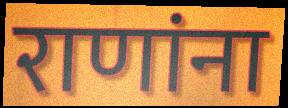
राणांना